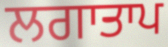
ਲਗਾਤਾਪ